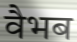
वैभब